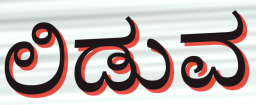
ಲಿಡುವ